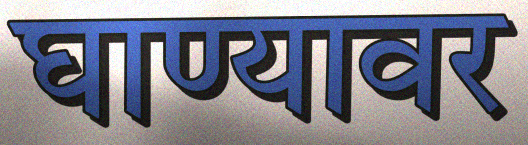
घाण्यावर